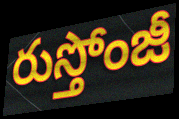
రుస్తోంజీ